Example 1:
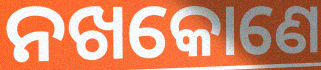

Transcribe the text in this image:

ନଖକୋଣେ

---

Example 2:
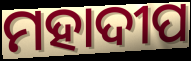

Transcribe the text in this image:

ମହାଦୀପ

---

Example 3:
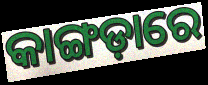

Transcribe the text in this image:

କାଙ୍ଗଡ଼ାରେ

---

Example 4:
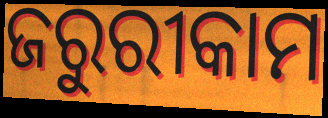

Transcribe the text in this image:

ଜରୁରୀକାମ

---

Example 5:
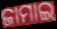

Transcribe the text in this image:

ଜାମାଇ